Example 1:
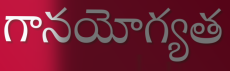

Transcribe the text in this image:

గానయోగ్యత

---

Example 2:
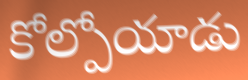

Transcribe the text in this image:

కోల్పోయాడు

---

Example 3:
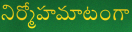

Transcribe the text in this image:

నిర్మోహమాటంగా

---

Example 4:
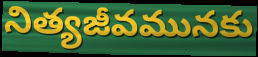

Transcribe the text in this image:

నిత్యజీవమునకు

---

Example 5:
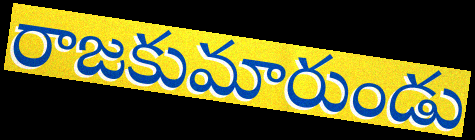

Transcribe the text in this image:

రాజకుమారుండు